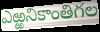
ఎఱ్ఱనికాంతిగల